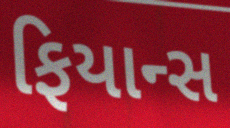
ફિયાન્સ